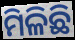
ମିଳିଛି